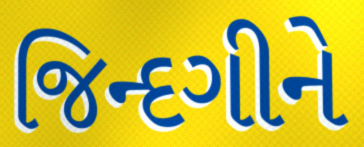
જિન્દગીને